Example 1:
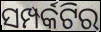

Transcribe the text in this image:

ସମ୍ପର୍କଟିର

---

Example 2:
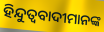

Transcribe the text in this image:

ହିନ୍ଦୁତ୍ଵବାଦୀମାନଙ୍କ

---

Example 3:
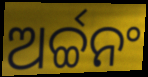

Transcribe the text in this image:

ଅର୍ଚ୍ଚନଂ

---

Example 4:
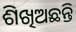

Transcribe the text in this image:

ଶିଖିଅଛନ୍ତି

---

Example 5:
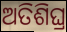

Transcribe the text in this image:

ଅତିଶିଘ୍ର